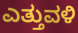
ಎತ್ತುವಳಿ